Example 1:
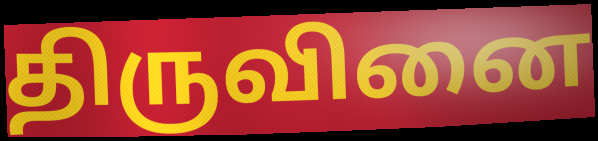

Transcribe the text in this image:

திருவினை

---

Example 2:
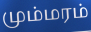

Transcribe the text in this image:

மும்மரம்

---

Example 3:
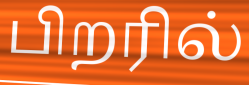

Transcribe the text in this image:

பிறரில்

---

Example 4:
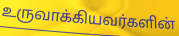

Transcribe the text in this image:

உருவாக்கியவர்களின்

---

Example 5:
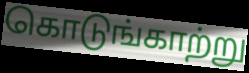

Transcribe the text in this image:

கொடுங்காற்று